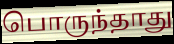
பொருந்தாது